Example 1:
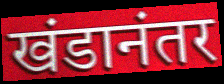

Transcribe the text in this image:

खंडानंतर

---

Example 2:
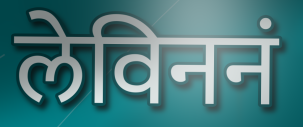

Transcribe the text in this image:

लेविननं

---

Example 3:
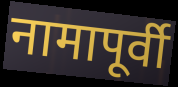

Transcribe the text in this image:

नामापूर्वी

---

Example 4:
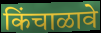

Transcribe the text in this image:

किंचाळावे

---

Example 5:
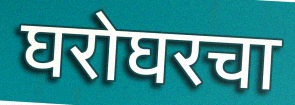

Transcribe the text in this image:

घरोघरचा